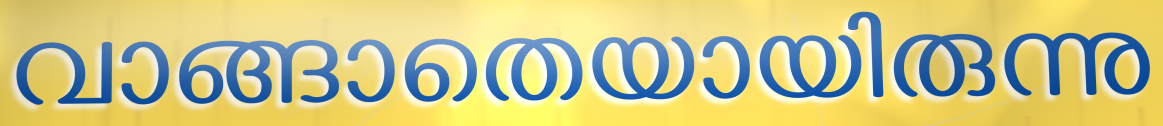
വാങ്ങാതെയായിരുന്നു